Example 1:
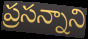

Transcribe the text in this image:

ప్రసన్నాని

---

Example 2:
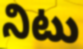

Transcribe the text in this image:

నిటు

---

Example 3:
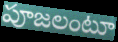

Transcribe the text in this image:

పూజలంటూ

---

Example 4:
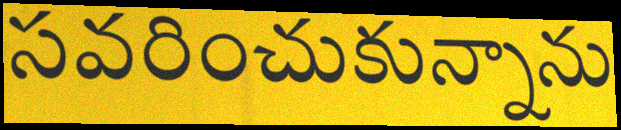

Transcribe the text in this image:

సవరించుకున్నాను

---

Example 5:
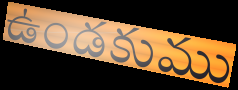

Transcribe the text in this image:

ఉండకుము